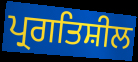
ਪ੍ਰਗਤਿਸ਼ੀਲ